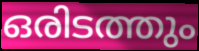
ഒരിടത്തും